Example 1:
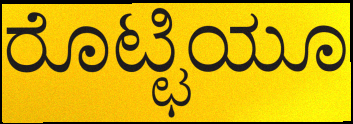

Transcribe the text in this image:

ರೊಟ್ಟಿಯೂ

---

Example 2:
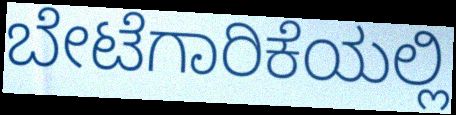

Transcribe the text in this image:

ಬೇಟೆಗಾರಿಕೆಯಲ್ಲಿ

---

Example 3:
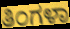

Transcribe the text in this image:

ತಿಂಗಳಾ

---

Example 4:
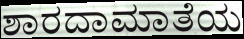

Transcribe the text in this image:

ಶಾರದಾಮಾತೆಯ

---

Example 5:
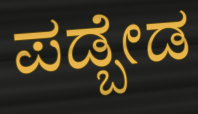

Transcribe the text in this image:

ಪಡ್ಬೇಡ